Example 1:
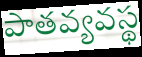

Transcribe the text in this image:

పాతవ్యవస్థ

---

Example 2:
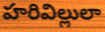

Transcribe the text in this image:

హరివిల్లులా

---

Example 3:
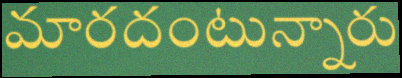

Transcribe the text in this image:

మారదంటున్నారు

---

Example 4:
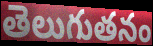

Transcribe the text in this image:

తెలుగుతనం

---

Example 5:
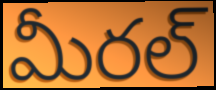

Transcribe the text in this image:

మీరల్